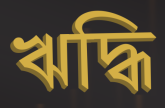
ঋদ্ধি